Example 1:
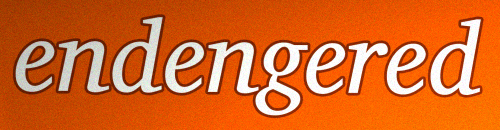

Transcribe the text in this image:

endengered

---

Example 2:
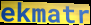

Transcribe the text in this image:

ekmatr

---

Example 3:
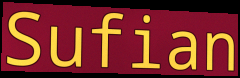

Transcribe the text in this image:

Sufian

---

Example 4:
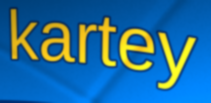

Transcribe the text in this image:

kartey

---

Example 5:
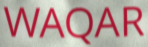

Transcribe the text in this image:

WAQAR